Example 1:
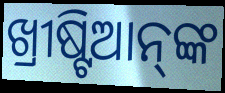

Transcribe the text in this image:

ଖ୍ରୀଷ୍ଟିଆନ୍‌ଙ୍କ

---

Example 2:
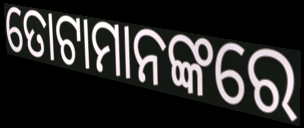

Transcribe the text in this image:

ତୋଟାମାନଙ୍କରେ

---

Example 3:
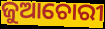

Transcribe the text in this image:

ଜୁଆଚୋରୀ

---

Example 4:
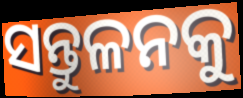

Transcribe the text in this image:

ସନ୍ତୁଳନକୁ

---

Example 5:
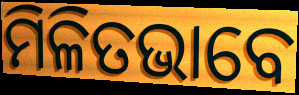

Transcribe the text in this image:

ମିଳିତଭାବେ